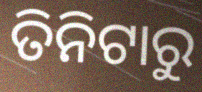
ତିନିଟାରୁ